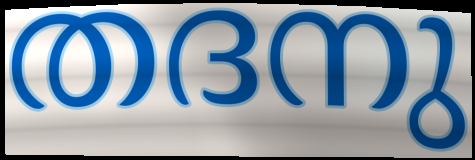
തദനു